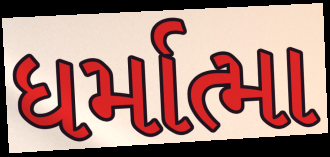
ધર્માત્મા